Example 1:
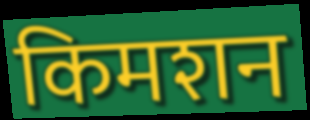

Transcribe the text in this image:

किमशन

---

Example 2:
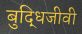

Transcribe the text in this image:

बुद्धिजीवी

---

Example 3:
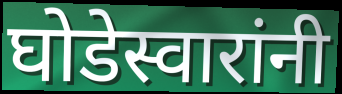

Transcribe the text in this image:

घोडेस्वारांनी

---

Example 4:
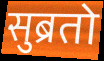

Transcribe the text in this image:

सुब्रतो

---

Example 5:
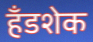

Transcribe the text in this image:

हँडशेक